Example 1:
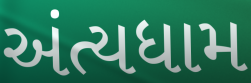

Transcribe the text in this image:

અંત્યધામ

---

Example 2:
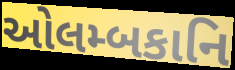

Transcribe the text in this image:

ઓલમ્બકાનિ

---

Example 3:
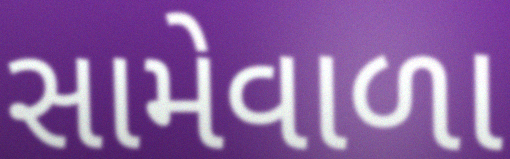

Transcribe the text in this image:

સામેવાળા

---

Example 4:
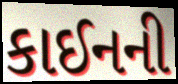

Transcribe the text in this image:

કાઈનની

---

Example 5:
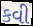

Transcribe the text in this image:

કવી